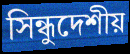
সিন্ধুদেশীয়